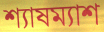
শ্যাষম্যাশ